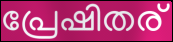
പ്രേഷിതര്